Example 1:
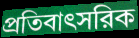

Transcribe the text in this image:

প্রতিবাৎসরিক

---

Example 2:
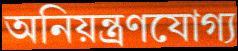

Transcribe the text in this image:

অনিয়ন্ত্রণযোগ্য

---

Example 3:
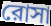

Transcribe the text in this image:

রোসা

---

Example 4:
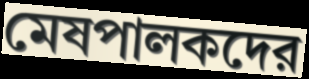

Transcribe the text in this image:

মেষপালকদের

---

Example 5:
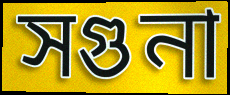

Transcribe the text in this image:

সগুনা